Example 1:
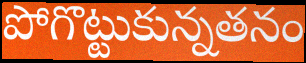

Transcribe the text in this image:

పోగొట్టుకున్నతనం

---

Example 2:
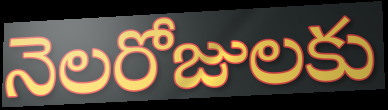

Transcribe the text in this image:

నెలరోజులకు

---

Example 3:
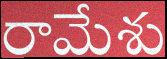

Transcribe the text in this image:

రామేశు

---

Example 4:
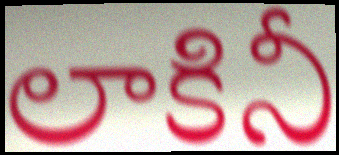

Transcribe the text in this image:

లాకినీ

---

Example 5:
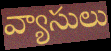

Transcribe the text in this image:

వ్యాసులు